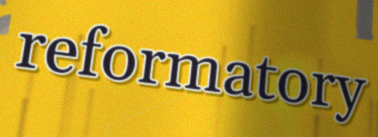
reformatory